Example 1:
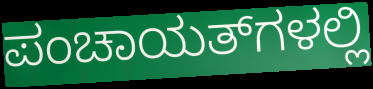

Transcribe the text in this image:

ಪಂಚಾಯತ್‌ಗಳಲ್ಲಿ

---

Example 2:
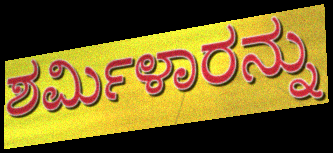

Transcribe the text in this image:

ಶರ್ಮಿಳಾರನ್ನು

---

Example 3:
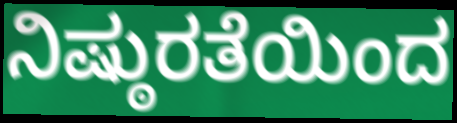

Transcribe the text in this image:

ನಿಷ್ಠುರತೆಯಿಂದ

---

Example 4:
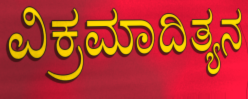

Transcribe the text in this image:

ವಿಕ್ರಮಾದಿತ್ಯನ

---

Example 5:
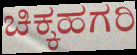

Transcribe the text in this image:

ಚಿಕ್ಕಹಗರಿ